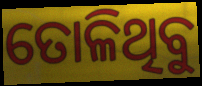
ତୋଳିଥିବୁ